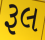
રૂલ